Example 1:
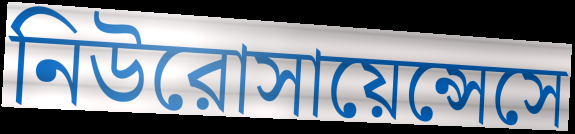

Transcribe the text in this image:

নিউরোসায়েন্সেসে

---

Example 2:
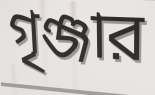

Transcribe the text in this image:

গৃঞ্জার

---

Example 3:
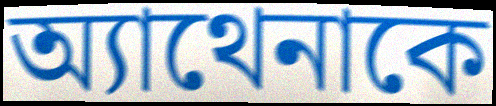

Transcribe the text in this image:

অ্যাথেনাকে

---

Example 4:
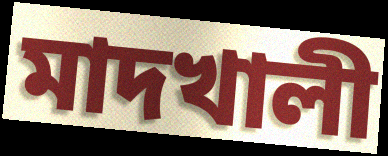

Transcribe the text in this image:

মাদখালী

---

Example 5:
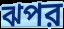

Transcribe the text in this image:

ঝপর